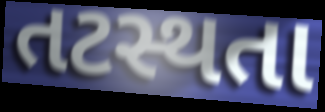
તટસ્થતા